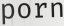
porn